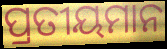
ପ୍ରତୀୟମାନ